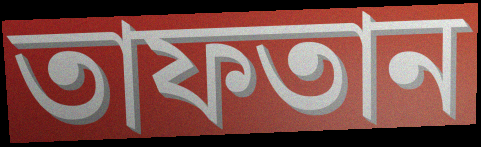
তাফতান